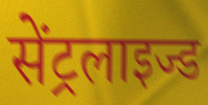
सेंट्रलाइज्ड